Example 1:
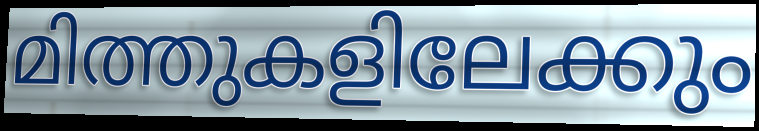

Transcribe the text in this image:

മിത്തുകളിലേക്കും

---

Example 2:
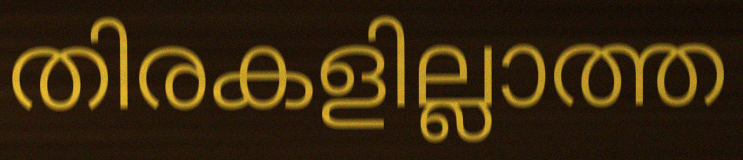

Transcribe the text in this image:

തിരകളില്ലാത്ത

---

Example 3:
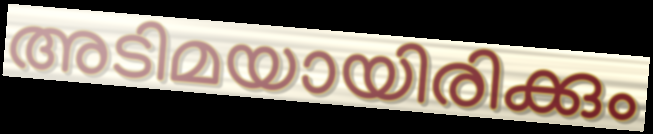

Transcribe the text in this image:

അടിമയായിരിക്കും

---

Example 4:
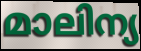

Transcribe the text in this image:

മാലിന്യ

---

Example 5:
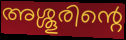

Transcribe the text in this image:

അശ്ശൂരിന്റെ